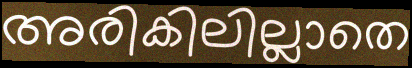
അരികിലില്ലാതെ